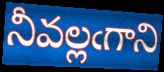
నీవల్లఁగాని